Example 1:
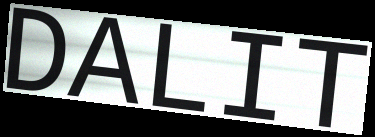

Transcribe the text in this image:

DALIT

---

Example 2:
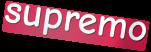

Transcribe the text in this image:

supremo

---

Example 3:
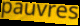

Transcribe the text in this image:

pauvres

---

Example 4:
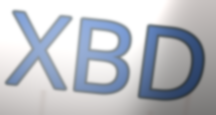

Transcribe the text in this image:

XBD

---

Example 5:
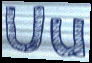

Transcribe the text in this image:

Uu